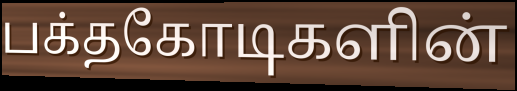
பக்தகோடிகளின்